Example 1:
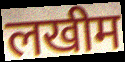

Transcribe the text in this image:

लखीम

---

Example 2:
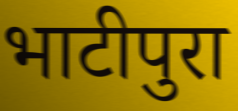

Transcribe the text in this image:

भाटीपुरा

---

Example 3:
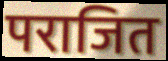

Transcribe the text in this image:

पराजित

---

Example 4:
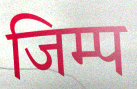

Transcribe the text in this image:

जिम्प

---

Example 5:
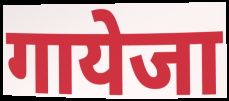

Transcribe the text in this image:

गायेजा